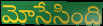
మోసేసింది